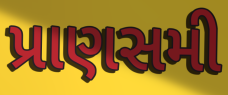
પ્રાણસમી